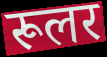
रूलर